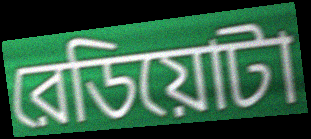
রেডিয়োটা